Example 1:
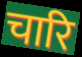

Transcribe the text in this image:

चारि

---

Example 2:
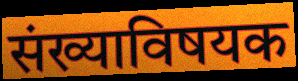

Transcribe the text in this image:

संख्याविषयक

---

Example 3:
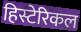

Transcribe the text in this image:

हिस्टेरिकल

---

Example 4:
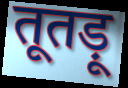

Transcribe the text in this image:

तूतड़ू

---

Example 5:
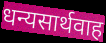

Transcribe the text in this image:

धन्यसार्थवाह